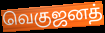
வெகுஜனத்